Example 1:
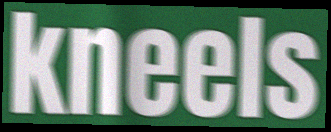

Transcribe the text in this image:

kneels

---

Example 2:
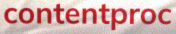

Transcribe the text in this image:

contentproc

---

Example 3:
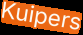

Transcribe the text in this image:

Kuipers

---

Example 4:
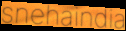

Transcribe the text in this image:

snehaindia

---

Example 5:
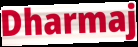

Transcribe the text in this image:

Dharmaj